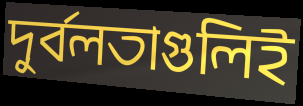
দুর্বলতাগুলিই